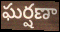
ఘర్షణా